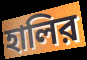
হালির